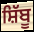
ਸ਼ਿੱਬੂ